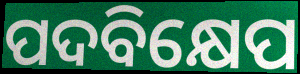
ପଦବିକ୍ଷେପ